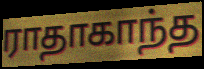
ராதாகாந்த